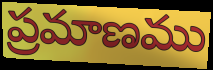
ప్రమాణము